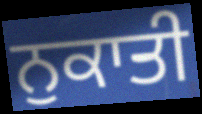
ਨੁਕਾਤੀ